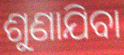
ଶୁଣାଯିବା